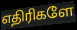
எதிரிகளே